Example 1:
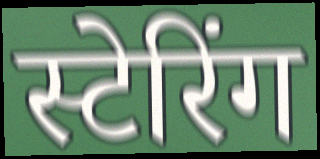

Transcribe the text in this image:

स्टेरिंग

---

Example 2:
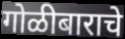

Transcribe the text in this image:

गोळीबाराचे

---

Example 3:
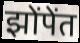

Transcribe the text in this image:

झोंपेंत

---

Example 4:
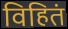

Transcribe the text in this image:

विहितं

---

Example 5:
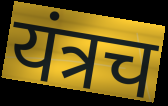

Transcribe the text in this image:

यंत्रच